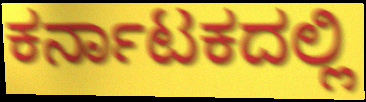
ಕರ್ನಾಟಕದಲ್ಲಿ